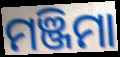
ମଞ୍ଜିମା